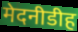
मेदनीडीह